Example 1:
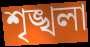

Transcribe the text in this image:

শৃঙ্খলা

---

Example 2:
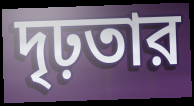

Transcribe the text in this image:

দৃঢ়তার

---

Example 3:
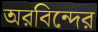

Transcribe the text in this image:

অরবিন্দের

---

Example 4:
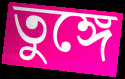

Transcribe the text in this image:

তুঙ্গে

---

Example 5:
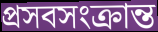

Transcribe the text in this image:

প্রসবসংক্রান্ত